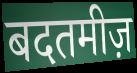
बदतमीज़